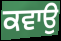
ਕਵਾਉ